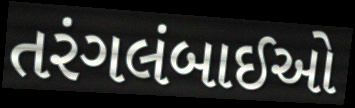
તરંગલંબાઈઓ